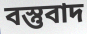
বস্তুবাদ